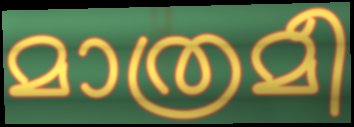
മാത്രമീ